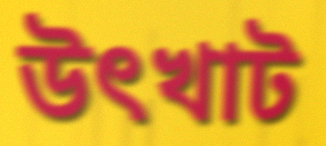
উৎখাট